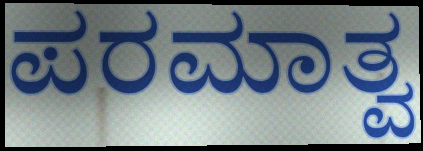
ಪರಮಾತ್ವ